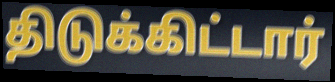
திடுக்கிட்டார்